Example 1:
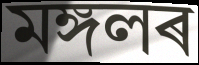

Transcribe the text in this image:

মঙ্গলৰ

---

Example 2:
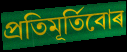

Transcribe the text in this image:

প্ৰতিমূৰ্তিবোৰ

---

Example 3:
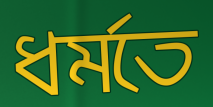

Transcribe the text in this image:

ধৰ্মতে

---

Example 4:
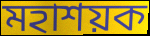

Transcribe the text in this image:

মহাশয়ক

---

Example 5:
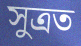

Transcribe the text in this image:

সুত্ৰত